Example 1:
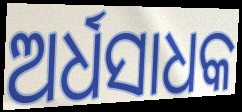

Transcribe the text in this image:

ଅର୍ଧସାଧକ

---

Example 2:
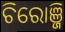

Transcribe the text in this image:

ଚିରୋଞ୍ଜି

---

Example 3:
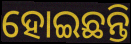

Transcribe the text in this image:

ହୋଇଛନ୍ତି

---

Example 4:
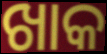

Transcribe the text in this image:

ଖାକ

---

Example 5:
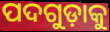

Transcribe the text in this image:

ପଦଗୁଡ଼ାକୁ